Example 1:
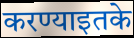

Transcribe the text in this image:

करण्याइतके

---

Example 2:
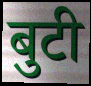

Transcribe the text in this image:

बुटी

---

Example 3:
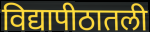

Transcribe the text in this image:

विद्यापीठातली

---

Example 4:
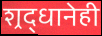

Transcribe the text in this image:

श्रद्धानेही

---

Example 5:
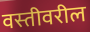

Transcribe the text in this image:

वस्तीवरील